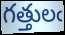
గత్తులఁ